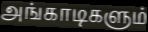
அங்காடிகளும்